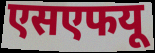
एसएफयू